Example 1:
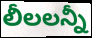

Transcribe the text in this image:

లీలలన్నీ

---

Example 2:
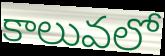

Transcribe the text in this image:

కాలువలో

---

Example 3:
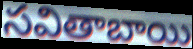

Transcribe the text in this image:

సవితాబాయి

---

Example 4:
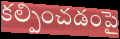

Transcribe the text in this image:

కల్పించడంపై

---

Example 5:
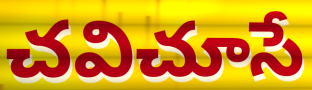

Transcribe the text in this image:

చవిచూసే